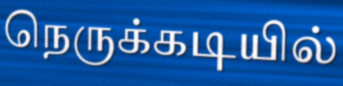
நெருக்கடியில்